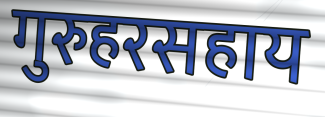
गुरुहरसहाय